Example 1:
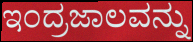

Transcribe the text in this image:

ಇಂದ್ರಜಾಲವನ್ನು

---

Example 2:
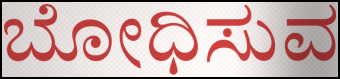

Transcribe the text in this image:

ಬೋಧಿಸುವ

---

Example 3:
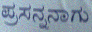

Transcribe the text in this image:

ಪ್ರಸನ್ನನಾಗು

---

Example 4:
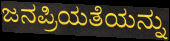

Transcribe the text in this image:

ಜನಪ್ರಿಯತೆಯನ್ನು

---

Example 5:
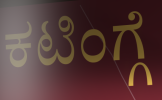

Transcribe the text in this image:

ಕಟಿಂಗ್ಗೆ